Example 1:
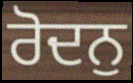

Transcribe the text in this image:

ਰੋਦਨੁ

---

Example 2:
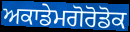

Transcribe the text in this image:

ਅਕਾਡੇਮਗੋਰੋਡੋਕ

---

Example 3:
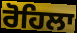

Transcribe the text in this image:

ਰੋਹਿਲਾ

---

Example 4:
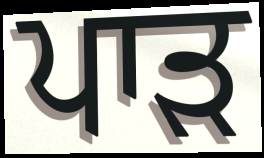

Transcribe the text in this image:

ਪਾੜ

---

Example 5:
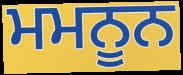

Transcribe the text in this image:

ਮਮਨੂਨ